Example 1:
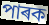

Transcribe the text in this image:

পাৰক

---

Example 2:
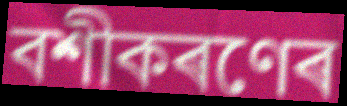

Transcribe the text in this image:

বশীকৰণেৰ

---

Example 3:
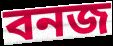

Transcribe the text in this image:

বনজ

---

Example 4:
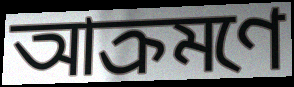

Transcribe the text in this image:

আক্ৰমণে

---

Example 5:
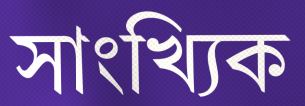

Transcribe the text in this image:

সাংখ্যিক